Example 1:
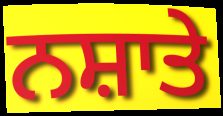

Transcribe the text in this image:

ਨਸ਼ਾਤੇ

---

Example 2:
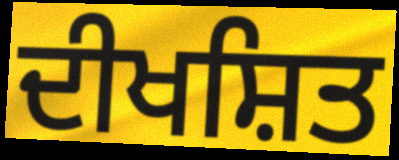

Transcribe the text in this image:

ਦੀਖਸ਼ਿਤ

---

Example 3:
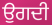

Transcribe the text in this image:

ਉਗਦੀ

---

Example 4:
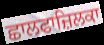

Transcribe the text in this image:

ਛਾਲਫਾਜ਼ਿਲਕਾ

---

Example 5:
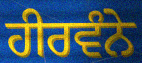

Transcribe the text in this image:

ਹੀਰਵੰਨੇ